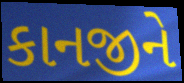
કાનજીને